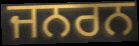
ਜਨਰਨ